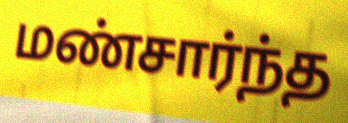
மண்சார்ந்த